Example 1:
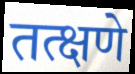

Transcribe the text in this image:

तत्क्षणे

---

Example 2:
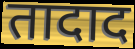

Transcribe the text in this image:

तादाद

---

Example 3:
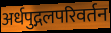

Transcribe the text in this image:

अर्धपुद्गलपरिवर्तन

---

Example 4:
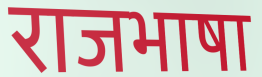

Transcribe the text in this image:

राजभाषा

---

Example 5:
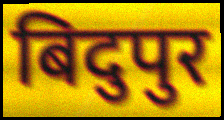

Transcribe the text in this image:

बिदुपुर